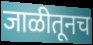
जाळीतूनच